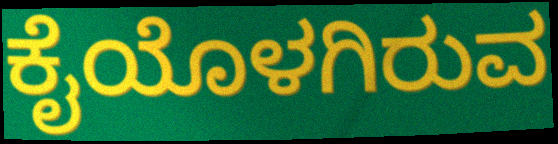
ಕೈಯೊಳಗಿರುವ